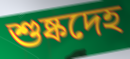
শুষ্কদেহ